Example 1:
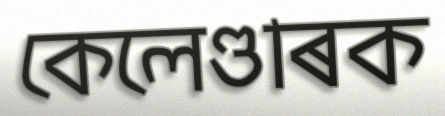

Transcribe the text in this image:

কেলেণ্ডাৰক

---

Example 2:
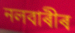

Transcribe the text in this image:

নলবাৰীৰ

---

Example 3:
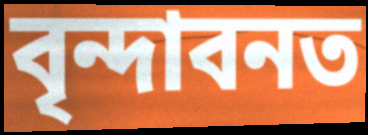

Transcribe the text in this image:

বৃন্দাবনত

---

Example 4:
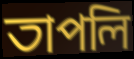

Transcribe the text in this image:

তাপলি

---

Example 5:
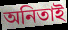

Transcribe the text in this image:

অনিতাই